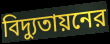
বিদ্যুতায়নের